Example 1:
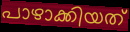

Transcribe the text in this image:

പാഴാക്കിയത്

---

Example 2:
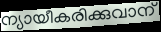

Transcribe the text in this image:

ന്യായീകരിക്കുവാന്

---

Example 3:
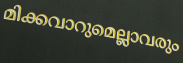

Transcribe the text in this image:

മിക്കവാറുമെല്ലാവരും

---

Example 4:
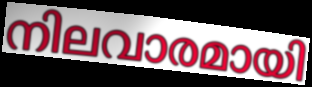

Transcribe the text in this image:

നിലവാരമായി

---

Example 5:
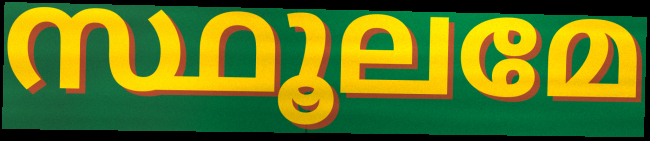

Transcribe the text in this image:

സ്ഥൂലമേ